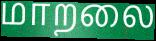
மாறலை